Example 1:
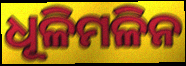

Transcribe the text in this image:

ଧୂଳିମଳିନ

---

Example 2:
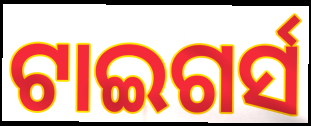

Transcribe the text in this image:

ଟାଇଗର୍ସ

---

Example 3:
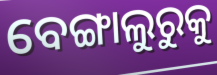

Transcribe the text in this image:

ବେଙ୍ଗାଲୁରୁକୁ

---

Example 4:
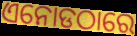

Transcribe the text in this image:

ଏନୋଡଠାରେ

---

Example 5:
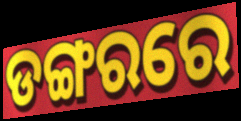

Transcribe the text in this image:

ଡଙ୍ଗରରେ